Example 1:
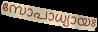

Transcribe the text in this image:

സോപാധ്യായഃ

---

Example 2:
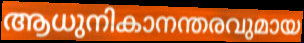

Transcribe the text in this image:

ആധുനികാനന്തരവുമായ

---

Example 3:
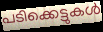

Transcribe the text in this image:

പടിക്കെട്ടുകൾ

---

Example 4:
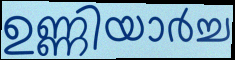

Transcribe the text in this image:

ഉണ്ണിയാർച്ച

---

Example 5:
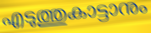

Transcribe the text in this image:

എടുത്തുകാട്ടാനും